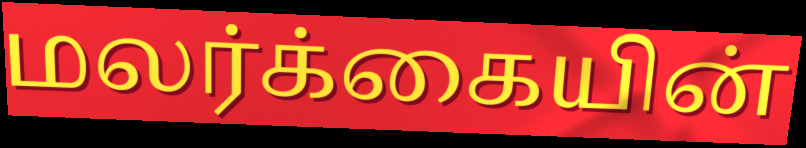
மலர்க்கையின்